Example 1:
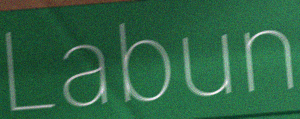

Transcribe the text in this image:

Labun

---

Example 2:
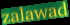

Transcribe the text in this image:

zalawad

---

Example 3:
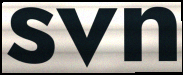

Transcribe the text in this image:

svn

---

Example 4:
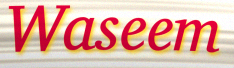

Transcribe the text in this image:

Waseem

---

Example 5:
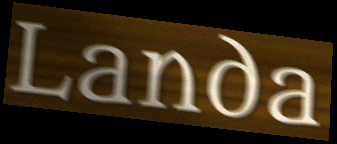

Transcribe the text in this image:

Landa